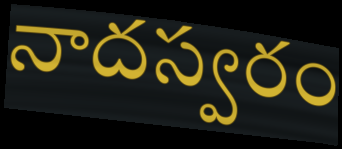
నాదస్వరం